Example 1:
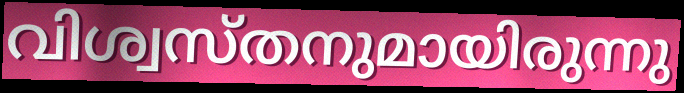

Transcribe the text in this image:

വിശ്വസ്തനുമായിരുന്നു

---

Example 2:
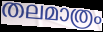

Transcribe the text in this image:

തലമാത്രം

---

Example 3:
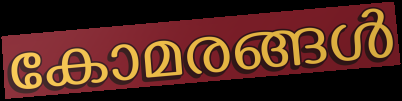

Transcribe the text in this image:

കോമരങ്ങൾ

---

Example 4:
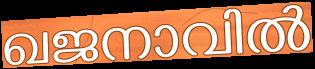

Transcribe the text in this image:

ഖജനാവിൽ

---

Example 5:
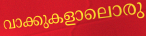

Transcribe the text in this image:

വാക്കുകളാലൊരു